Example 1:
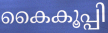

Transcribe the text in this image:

കൈകൂപ്പി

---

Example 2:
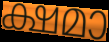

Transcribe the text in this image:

ക്ഷമാ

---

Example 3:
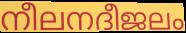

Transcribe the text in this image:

നീലനദീജലം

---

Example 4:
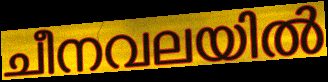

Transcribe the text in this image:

ചീനവലയിൽ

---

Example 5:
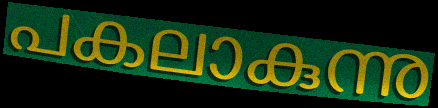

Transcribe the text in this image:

പകലാകുന്നു